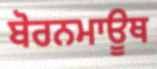
ਬੋਰਨਮਾਊਥ